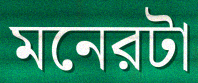
মনেরটা